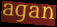
agan